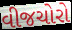
વીજચોરો